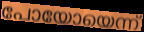
പോയോയെന്ന്